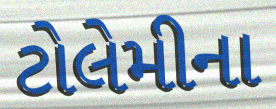
ટોલેમીના